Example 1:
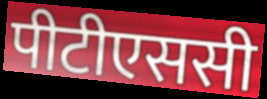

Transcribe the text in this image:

पीटीएससी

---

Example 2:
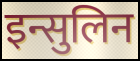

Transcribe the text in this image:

इन्सुलिन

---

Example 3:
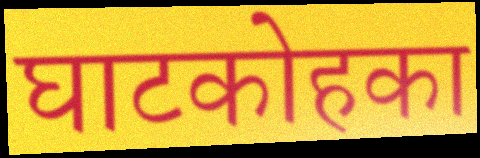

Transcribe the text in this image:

घाटकोहका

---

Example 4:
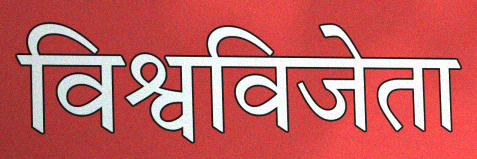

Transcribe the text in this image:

विश्वविजेता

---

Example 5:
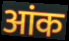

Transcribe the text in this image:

आंक